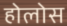
होलोस